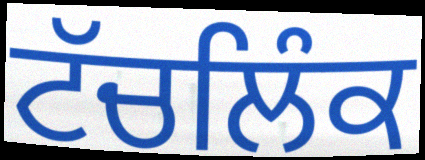
ਟੱਚਲਿੰਕ